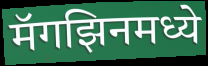
मॅगझिनमध्ये